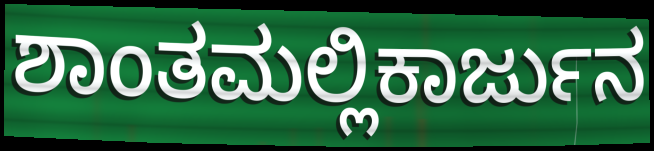
ಶಾಂತಮಲ್ಲಿಕಾರ್ಜುನ